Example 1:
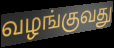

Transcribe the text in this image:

வழங்குவது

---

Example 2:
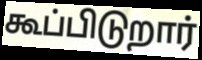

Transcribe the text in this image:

கூப்பிடுறார்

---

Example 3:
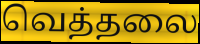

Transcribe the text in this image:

வெத்தலை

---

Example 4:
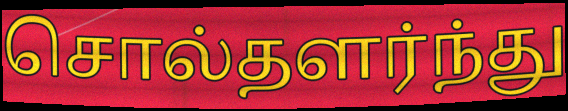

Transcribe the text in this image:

சொல்தளர்ந்து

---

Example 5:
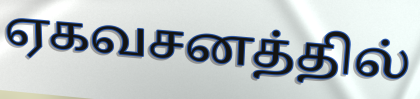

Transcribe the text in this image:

ஏகவசனத்தில்